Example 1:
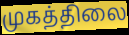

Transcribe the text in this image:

முகத்திலை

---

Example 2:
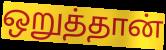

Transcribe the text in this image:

ஒறுத்தான்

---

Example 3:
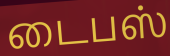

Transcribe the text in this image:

டைபஸ்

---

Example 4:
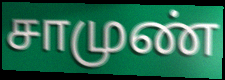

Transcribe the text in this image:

சாமுண்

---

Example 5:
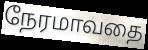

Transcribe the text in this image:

நேரமாவதை